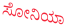
ಸೋನಿಯಾ